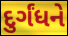
દુર્ગંધને